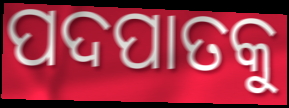
ପଦପାତକୁ